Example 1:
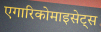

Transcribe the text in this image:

एगारिकोमाइसेट्स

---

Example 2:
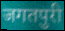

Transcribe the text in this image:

जगतपुरी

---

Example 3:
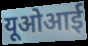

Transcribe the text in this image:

यूओआई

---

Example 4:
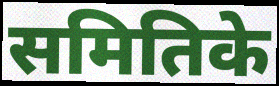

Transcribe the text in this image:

समितिके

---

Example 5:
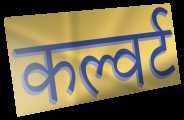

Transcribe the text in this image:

कल्वर्ट